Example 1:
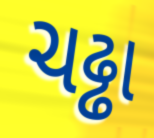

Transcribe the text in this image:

ચઢ્ઢા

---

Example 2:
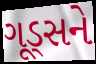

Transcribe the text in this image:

ગૂડ્સને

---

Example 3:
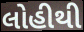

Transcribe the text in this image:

લોહીથી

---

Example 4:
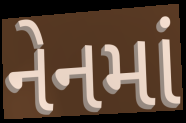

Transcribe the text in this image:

નેનમાં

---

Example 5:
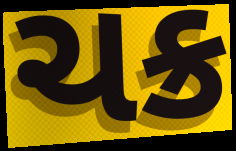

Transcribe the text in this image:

ચક્ર